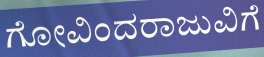
ಗೋವಿಂದರಾಜುವಿಗೆ